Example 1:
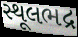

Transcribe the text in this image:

સ્થૂલભદ્ર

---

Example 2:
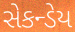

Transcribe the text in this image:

સેકન્ડેય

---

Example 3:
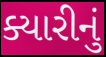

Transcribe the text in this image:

ક્યારીનું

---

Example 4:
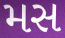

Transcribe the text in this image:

મસ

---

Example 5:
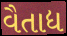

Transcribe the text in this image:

વૈતાદ્ય